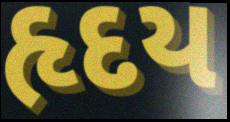
હૃદય